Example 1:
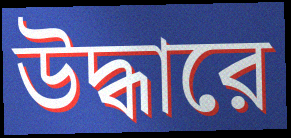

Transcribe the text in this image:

উদ্ধারে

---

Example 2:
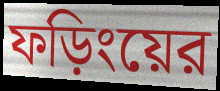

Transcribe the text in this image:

ফড়িংয়ের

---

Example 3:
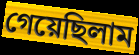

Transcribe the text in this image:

গেয়েছিলাম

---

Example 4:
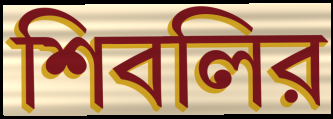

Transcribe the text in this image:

শিবলির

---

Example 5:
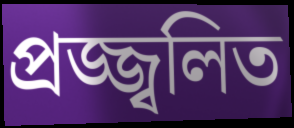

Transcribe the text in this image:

প্রজ্জ্বলিত